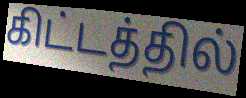
கிட்டத்தில்